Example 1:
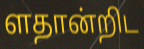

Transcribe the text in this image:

ளதான்றிட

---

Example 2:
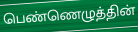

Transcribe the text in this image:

பெண்ணெழுத்தின்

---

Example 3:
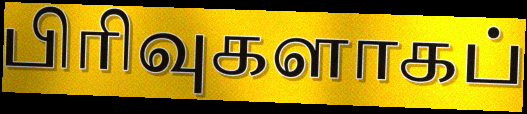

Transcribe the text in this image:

பிரிவுகளாகப்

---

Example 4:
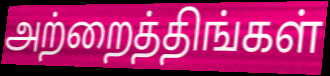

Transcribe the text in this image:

அற்றைத்திங்கள்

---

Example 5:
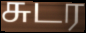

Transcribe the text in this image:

சுடர